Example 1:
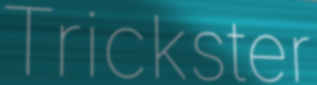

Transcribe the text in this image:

Trickster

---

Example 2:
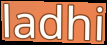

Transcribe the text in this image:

ladhi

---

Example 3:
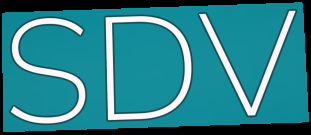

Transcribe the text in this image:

SDV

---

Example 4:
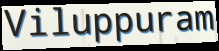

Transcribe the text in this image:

Viluppuram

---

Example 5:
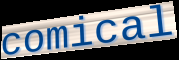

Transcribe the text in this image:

comical